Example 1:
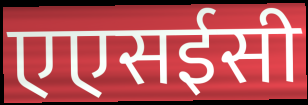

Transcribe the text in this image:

एएसईसी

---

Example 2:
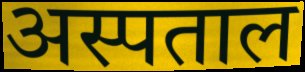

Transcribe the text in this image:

अस्पताल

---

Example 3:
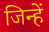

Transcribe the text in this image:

जिन्हें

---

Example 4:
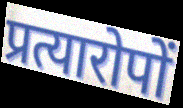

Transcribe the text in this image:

प्रत्यारोपों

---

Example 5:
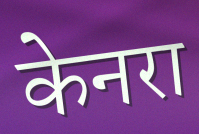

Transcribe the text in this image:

केनरा